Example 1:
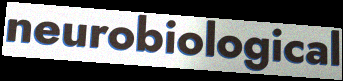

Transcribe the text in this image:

neurobiological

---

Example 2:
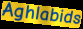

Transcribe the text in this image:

Aghlabids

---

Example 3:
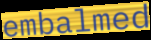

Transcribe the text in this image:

embalmed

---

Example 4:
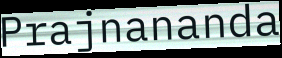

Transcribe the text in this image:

Prajnananda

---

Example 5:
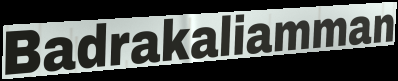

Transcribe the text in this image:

Badrakaliamman